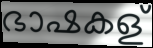
ഭാഷകള്